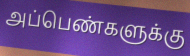
அப்பெண்களுக்கு